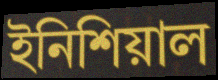
ইনিশিয়াল